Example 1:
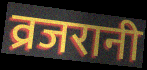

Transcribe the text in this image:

व्रजरानी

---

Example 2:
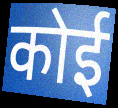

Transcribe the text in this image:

कोई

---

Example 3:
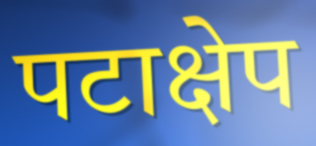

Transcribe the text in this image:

पटाक्षेप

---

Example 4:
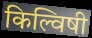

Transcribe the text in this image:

किल्विषी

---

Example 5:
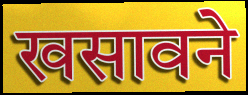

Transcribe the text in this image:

खसावने